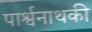
पार्श्वनाथकी